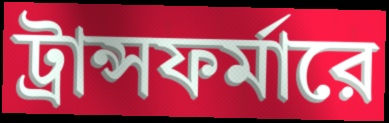
ট্রান্সফর্মারে